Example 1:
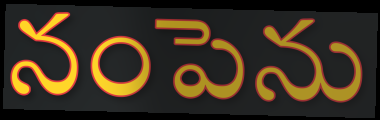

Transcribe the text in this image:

నంపెను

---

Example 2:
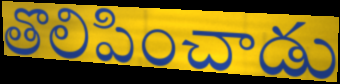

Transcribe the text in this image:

తొలిపించాడు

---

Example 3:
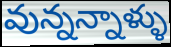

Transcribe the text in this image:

వున్నన్నాళ్ళు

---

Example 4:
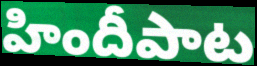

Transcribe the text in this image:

హిందీపాట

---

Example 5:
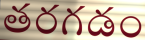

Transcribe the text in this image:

తరగడం